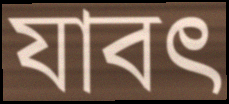
যাবৎ